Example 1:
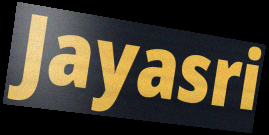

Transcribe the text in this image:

Jayasri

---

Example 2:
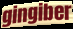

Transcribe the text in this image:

gingiber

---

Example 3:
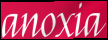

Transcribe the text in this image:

anoxia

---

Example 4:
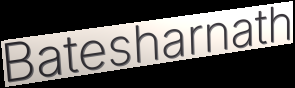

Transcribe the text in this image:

Batesharnath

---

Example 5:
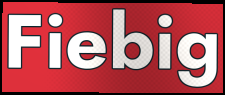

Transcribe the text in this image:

Fiebig